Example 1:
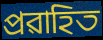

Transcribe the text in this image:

প্ৰৱাহিত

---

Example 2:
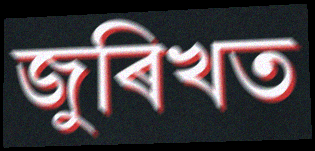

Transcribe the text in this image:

জুৰিখত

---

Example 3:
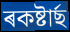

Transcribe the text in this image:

ৰকষ্টাৰ্ছ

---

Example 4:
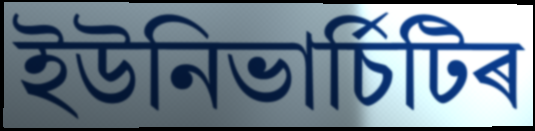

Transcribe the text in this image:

ইউনিভাৰ্চিটিৰ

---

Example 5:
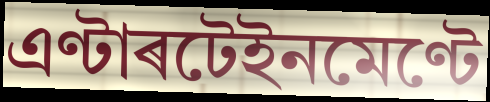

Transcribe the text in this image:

এণ্টাৰটেইনমেণ্টে